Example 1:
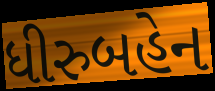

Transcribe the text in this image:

ધીરુબહેન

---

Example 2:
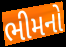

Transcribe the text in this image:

ભીમનો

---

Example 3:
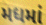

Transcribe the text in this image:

મધમાં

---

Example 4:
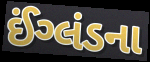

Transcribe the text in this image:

ઈંગ્લંડના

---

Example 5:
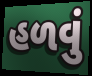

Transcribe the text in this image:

હળવું